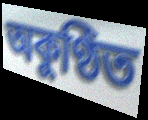
অকুণ্ঠিত